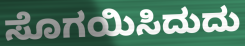
ಸೊಗಯಿಸಿದುದು